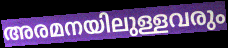
അരമനയിലുള്ളവരും